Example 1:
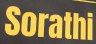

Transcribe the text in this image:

Sorathi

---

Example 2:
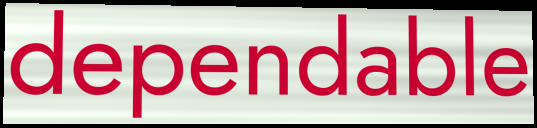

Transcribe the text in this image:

dependable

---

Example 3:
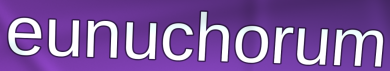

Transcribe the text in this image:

eunuchorum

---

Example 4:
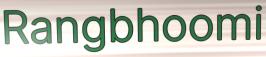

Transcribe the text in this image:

Rangbhoomi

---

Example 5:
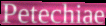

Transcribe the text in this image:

Petechiae